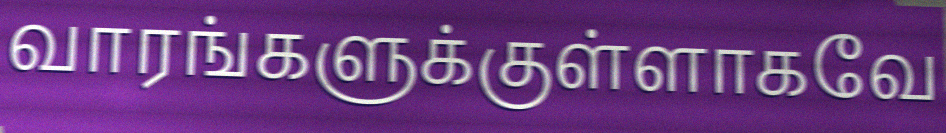
வாரங்களுக்குள்ளாகவே